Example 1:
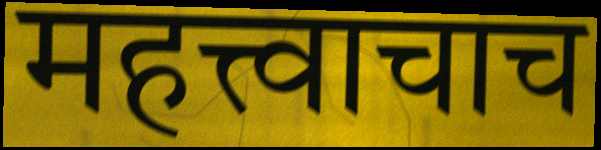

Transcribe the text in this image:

महत्त्वाचाच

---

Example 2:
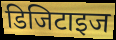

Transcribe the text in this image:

डिजिटाइज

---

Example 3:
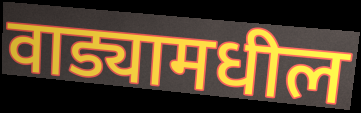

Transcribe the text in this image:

वाड्यामधील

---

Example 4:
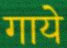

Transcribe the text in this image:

गाये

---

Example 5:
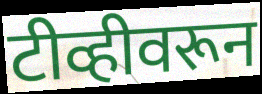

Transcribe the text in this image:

टीव्हीवरून